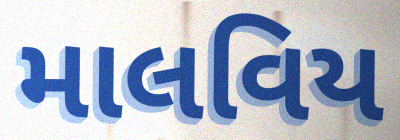
માલવિય